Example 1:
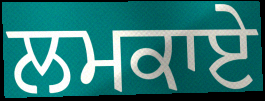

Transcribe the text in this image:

ਲਮਕਾਏ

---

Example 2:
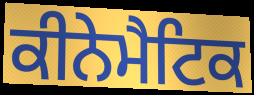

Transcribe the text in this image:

ਕੀਨੇਮੈਟਿਕ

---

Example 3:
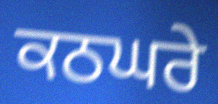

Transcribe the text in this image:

ਕਠਘਰੇ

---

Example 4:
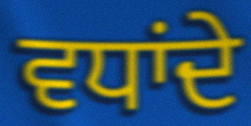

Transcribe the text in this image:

ਵਧਾਂਦੇ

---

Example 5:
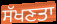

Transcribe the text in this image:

ਸੱਖਣਤਾ